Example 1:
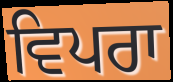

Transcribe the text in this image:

ਵਿਪਰਾ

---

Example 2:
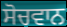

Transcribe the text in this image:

ਸੋਚਵਾਨ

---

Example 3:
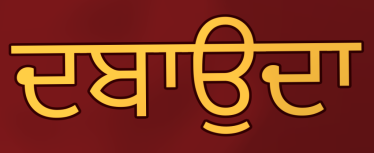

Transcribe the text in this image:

ਦਬਾਉਦਾ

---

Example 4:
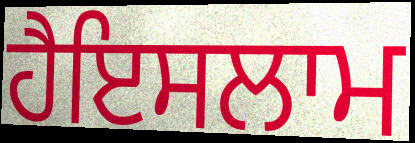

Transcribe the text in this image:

ਹੈਇਸਲਾਮ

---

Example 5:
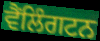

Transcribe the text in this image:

ਵੈਂਲਿੰਗਟਨ